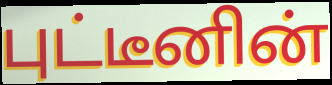
புட்டீனின்